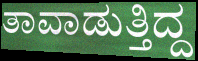
ತಾವಾಡುತ್ತಿದ್ದ